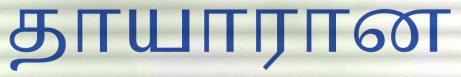
தாயாரான